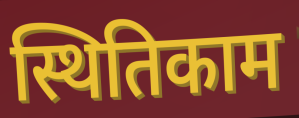
स्थितिकाम